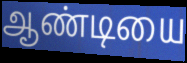
ஆண்டியை